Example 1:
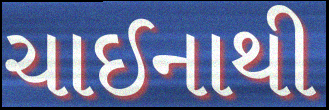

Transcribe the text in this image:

ચાઈનાથી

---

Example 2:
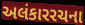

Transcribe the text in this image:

અલંકારરચના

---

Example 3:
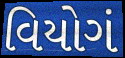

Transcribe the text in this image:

વિયોગં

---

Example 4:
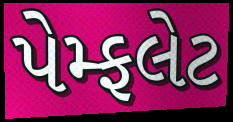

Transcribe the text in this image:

પેમ્ફલેટ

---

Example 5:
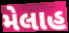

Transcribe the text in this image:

મેલાહ